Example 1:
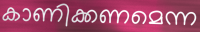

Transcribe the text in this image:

കാണിക്കണമെന്ന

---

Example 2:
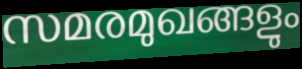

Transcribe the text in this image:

സമരമുഖങ്ങളും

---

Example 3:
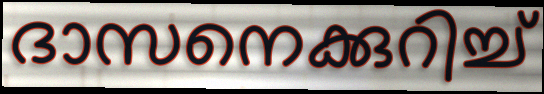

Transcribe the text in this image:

ദാസനെക്കുറിച്ച്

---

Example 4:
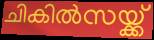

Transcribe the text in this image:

ചികിൽസയ്ക്ക്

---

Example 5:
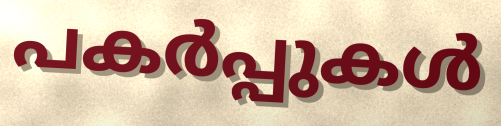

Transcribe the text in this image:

പകർപ്പുകൾ